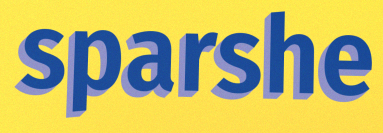
sparshe